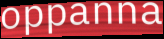
oppanna